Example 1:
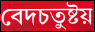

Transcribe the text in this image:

বেদচতুষ্টয়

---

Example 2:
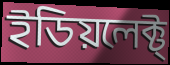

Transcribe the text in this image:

ইডিয়লেক্ট্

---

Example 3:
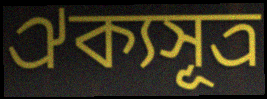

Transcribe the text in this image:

ঐক্যসূত্র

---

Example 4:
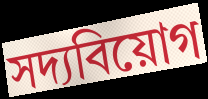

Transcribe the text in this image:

সদ্যবিয়োগ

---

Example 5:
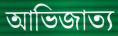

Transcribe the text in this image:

আভিজাত্য